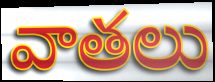
వాతలు